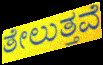
ತೇಲುತ್ತವೆ